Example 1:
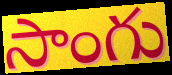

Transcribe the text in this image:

సాంగు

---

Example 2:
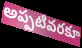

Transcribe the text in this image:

అప్పటివరకూ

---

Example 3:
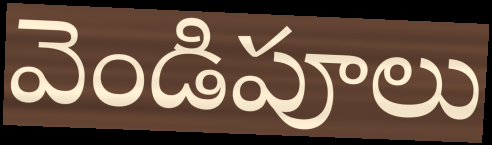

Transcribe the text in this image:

వెండిపూలు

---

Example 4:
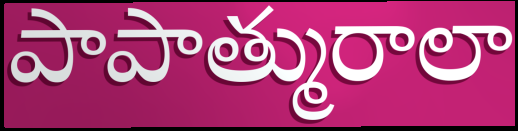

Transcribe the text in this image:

పాపాత్మురాలా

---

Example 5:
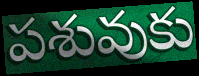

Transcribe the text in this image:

పశువుకు